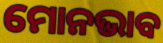
ମୋନଭାବ